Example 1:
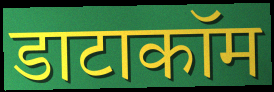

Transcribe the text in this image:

डाटाकॉम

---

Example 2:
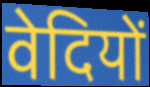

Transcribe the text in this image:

वेदियों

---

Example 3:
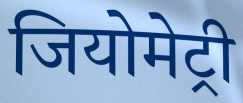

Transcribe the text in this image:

जियोमेट्री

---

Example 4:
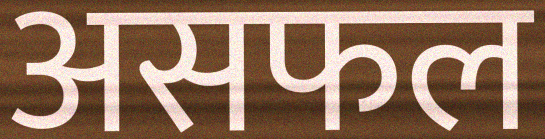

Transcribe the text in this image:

असफल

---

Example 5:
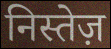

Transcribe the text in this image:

निस्तेज़